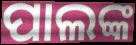
ପାଲଙ୍କ